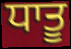
ਧਾਤੂ